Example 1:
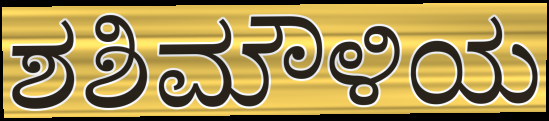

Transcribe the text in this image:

ಶಶಿಮೌಳಿಯ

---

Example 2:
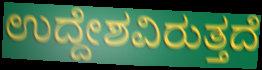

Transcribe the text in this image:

ಉದ್ದೇಶವಿರುತ್ತದೆ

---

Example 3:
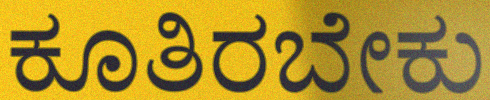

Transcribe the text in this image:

ಕೂತಿರಬೇಕು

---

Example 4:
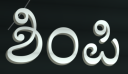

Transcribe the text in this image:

ಶಿಂಪಿ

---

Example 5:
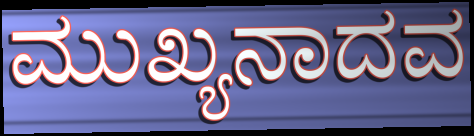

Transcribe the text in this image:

ಮುಖ್ಯನಾದವ